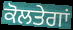
ਕੋਲਤੇਗਾਂ